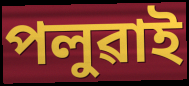
পলুৱাই